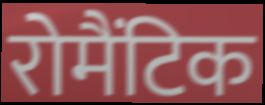
रोमैंटिक